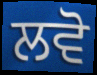
ਲਵੋ